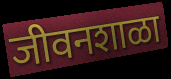
जीवनशाळा